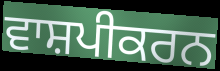
ਵਾਸ਼ਪੀਕਰਨ